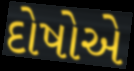
દોષોએ